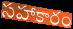
సహాకారం